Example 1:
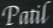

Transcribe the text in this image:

Patil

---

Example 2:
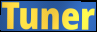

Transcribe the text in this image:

Tuner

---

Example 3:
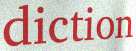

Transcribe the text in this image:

diction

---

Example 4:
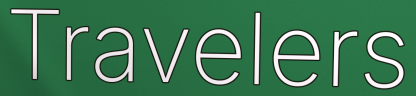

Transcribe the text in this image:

Travelers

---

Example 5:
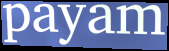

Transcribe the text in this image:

payam